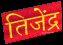
तिजेंद्र